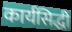
कार्यसिद्धी